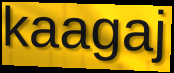
kaagaj